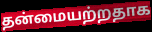
தன்மையற்றதாக